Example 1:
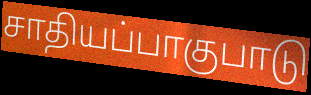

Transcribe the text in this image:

சாதியப்பாகுபாடு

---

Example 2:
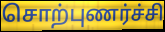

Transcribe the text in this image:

சொற்புணர்ச்சி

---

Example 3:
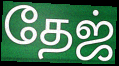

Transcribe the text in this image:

தேஜ்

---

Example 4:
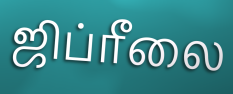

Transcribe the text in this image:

ஜிப்ரீலை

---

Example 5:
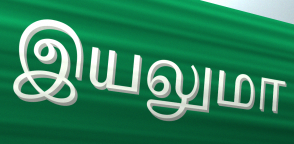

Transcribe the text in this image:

இயலுமா